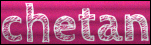
chetan